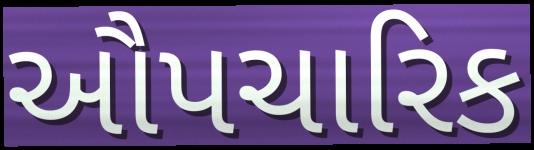
ઔપચારિક